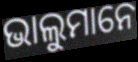
ଭାଲୁମାନେ